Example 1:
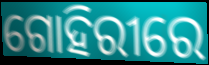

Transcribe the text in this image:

ଗୋହିରୀରେ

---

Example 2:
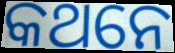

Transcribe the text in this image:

କଥନେ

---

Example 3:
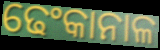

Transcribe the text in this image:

ଢେଂକାନାଳ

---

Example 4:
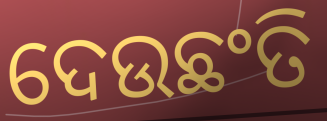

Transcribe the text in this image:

ଦେଉଛଂତି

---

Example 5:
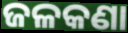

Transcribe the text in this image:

ଜଳକଣା